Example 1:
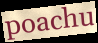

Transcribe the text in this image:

poachu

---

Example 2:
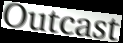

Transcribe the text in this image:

Outcast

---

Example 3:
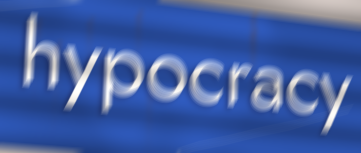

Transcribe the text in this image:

hypocracy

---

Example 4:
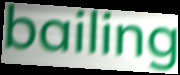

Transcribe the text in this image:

bailing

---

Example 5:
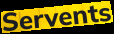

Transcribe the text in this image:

Servents